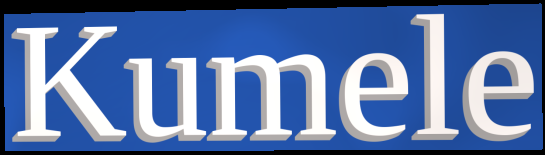
Kumele